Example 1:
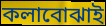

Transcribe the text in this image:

কলাবোঝাই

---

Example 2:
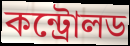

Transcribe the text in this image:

কন্ট্রোলড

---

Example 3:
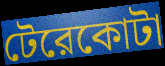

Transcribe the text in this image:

টেরেকোটা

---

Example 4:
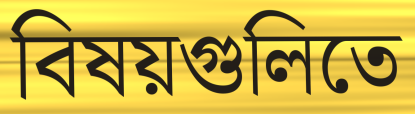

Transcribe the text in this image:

বিষয়গুলিতে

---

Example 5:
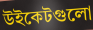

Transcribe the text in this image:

উইকেটগুলো